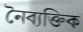
নৈব্যক্তিক